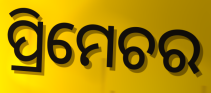
ପ୍ରିମେଚର